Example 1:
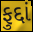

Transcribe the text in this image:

ફુદ્દાં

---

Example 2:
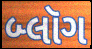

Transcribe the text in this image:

બ્લૉગ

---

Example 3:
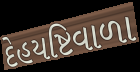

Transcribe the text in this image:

દેહયષ્ટિવાળા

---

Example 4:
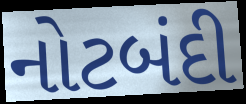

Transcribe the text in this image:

નોટબંદી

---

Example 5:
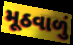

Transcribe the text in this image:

મૂઠવાળું